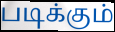
படிக்கும்